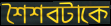
শৈশবটাকে